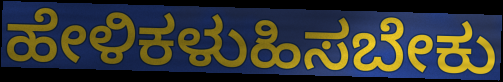
ಹೇಳಿಕಳುಹಿಸಬೇಕು